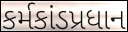
કર્મકાંડપ્રધાન